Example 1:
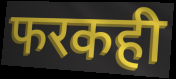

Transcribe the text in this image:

फरकही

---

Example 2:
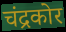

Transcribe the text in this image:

चंद्रकोर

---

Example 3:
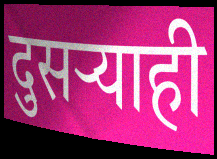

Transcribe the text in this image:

दुसऱ्याही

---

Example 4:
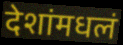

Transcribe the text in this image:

देशांमधलं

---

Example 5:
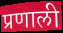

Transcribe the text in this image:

प्रणाली